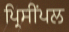
ਪ੍ਰਿਸੀਂਪਲ